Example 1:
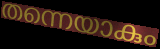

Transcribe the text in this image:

തന്നെയാകും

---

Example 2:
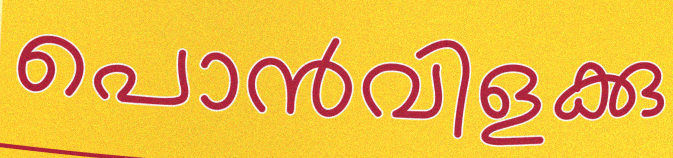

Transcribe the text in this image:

പൊൻവിളക്കു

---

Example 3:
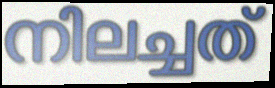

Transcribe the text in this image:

നിലച്ചത്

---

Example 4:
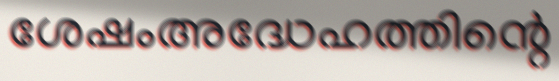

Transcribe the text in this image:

ശേഷംഅദ്ധേഹത്തിന്റെ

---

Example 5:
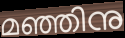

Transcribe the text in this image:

മഞ്ഞിനു